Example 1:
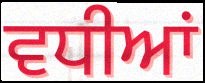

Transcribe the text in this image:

ਵਧੀਆਂ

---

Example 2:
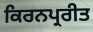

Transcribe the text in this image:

ਕਿਰਨਪ੍ਰਰੀਤ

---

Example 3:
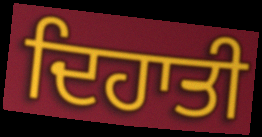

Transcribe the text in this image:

ਦਿਹਾਤੀ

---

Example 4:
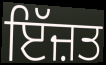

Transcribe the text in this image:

ਇੱਜ਼ਤ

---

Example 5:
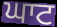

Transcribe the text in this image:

ਘਾਟ